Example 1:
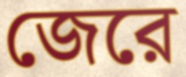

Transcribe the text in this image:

জেরে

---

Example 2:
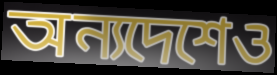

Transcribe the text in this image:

অন্যদেশেও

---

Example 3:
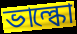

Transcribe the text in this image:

ভাল্কো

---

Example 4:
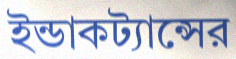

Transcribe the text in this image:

ইন্ডাকট্যান্সের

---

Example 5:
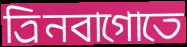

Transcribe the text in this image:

ত্রিনবাগোতে